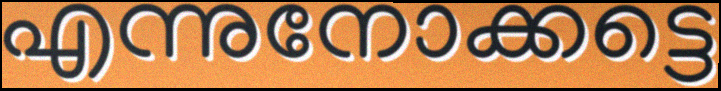
എന്നുനോക്കട്ടെ